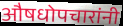
औषधोपचारांनी